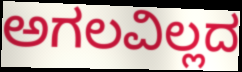
ಅಗಲವಿಲ್ಲದ